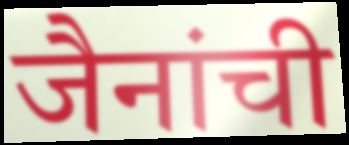
जैनांची